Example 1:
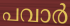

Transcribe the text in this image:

പവാർ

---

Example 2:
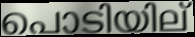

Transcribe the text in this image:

പൊടിയില്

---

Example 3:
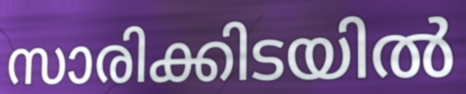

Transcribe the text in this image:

സാരിക്കിടയിൽ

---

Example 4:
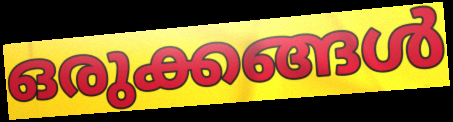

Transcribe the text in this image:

ഒരുക്കങ്ങൾ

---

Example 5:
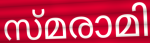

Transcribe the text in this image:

സ്മരാമി